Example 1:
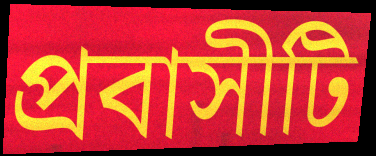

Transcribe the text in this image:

প্রবাসীটি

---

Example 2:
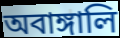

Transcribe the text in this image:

অবাঙ্গালি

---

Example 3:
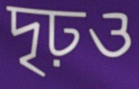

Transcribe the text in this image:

দৃঢ়ও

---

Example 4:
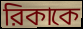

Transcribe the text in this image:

রিকাকে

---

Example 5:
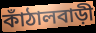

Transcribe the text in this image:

কাঁঠালবাড়ী